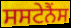
ਸਸਟੇਨੈਂਸ